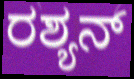
ರಶ್ಯನ್